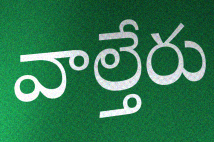
వాల్తేరు